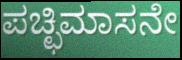
ಪಚ್ಛಿಮಾಸನೇ